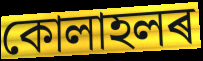
কোলাহলৰ